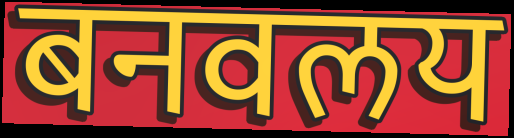
बनवलय